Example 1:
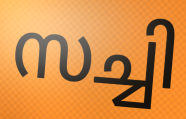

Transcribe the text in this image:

സച്ചി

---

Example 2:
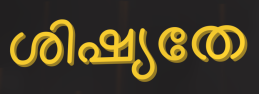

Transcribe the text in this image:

ശിഷ്യതേ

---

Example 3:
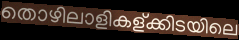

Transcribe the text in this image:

തൊഴിലാളികള്ക്കിടയിലെ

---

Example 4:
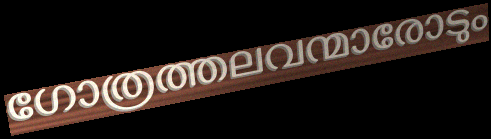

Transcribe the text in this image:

ഗോത്രത്തലവന്മാരോടും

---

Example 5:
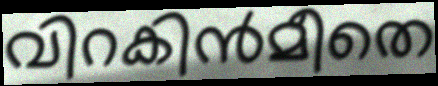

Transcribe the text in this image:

വിറകിൻമീതെ